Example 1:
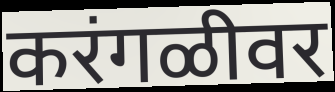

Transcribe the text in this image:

करंगळीवर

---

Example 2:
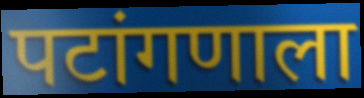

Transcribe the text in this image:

पटांगणाला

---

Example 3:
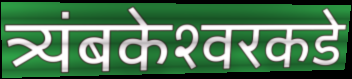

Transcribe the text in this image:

त्र्यंबकेश्वरकडे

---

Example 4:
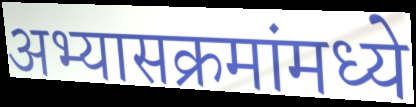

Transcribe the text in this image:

अभ्यासक्रमांमध्ये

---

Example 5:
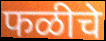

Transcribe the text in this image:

फळीचे